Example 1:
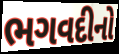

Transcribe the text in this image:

ભગવદીનો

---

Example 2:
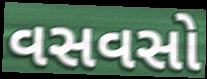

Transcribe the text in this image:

વસવસો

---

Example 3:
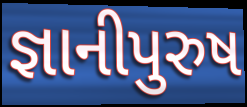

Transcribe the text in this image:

જ્ઞાનીપુરુષ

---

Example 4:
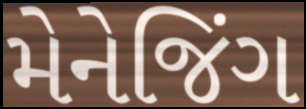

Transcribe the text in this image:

મેનેજિંગ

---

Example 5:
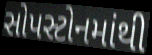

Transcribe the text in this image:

સોપસ્ટોનમાંથી